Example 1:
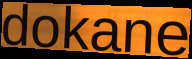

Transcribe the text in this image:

dokane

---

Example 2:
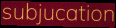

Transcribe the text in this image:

subjucation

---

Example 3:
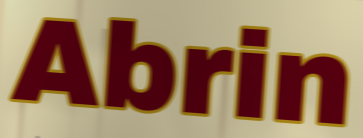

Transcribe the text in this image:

Abrin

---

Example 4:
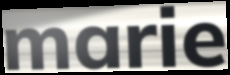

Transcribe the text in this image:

marie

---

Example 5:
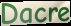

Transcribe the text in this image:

Dacre